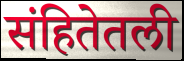
संहितेतली